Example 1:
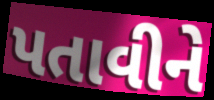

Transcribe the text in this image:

પતાવીને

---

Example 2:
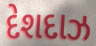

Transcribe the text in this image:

દેશદાઝ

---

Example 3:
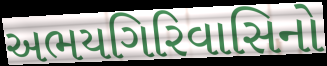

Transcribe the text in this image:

અભયગિરિવાસિનો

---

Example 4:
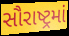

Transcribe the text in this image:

સૌરાષ્ટ્રમાં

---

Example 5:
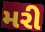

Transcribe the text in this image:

મરી